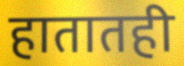
हातातही